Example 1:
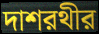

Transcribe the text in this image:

দাশরথীর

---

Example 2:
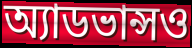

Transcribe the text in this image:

অ্যাডভান্সও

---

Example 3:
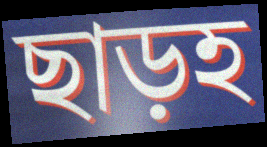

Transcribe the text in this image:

ছাড়হ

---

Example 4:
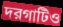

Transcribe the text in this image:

দরগাটিও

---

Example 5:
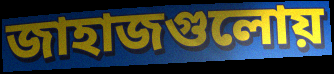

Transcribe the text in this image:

জাহাজগুলোয়